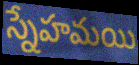
స్నేహమయి